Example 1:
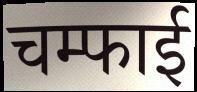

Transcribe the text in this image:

चम्फाई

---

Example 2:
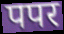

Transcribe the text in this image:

पपर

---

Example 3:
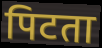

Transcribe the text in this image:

पिटता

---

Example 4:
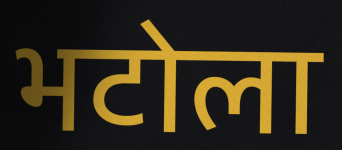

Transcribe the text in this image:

भटोला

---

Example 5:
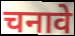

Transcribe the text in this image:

चनावे